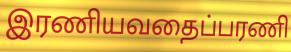
இரணியவதைப்பரணி